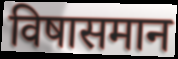
विषासमान